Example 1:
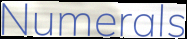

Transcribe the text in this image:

Numerals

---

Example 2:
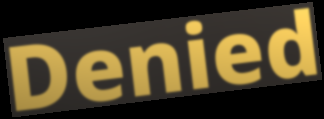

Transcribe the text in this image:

Denied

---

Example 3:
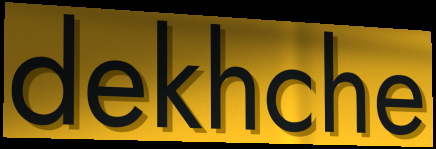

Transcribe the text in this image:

dekhche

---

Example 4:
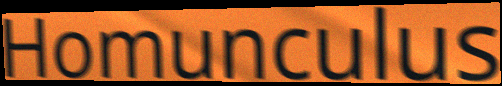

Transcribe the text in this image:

Homunculus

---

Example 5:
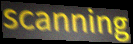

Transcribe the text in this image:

scanning